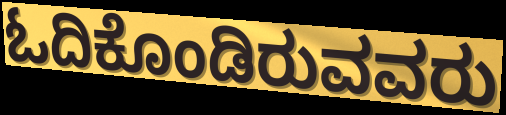
ಓದಿಕೊಂಡಿರುವವರು